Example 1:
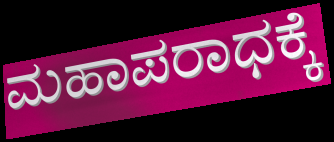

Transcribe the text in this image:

ಮಹಾಪರಾಧಕ್ಕೆ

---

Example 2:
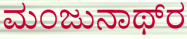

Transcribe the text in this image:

ಮಂಜುನಾಥ್‌ರ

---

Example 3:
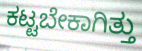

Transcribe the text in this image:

ಕಟ್ಟಬೇಕಾಗಿತ್ತು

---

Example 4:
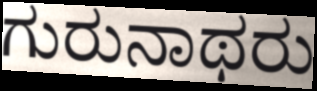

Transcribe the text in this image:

ಗುರುನಾಥರು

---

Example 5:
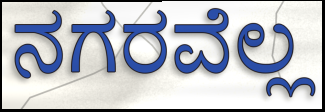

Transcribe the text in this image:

ನಗರವೆಲ್ಲ